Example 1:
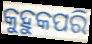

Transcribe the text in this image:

କୁହୁକପରି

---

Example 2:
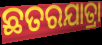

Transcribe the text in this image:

ଛତରଯାତ୍ରା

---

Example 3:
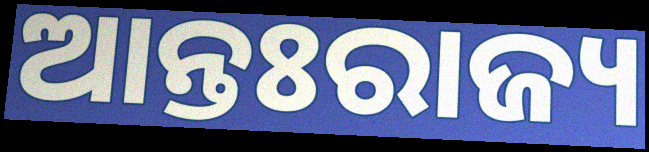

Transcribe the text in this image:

ଆନ୍ତଃରାଜ୍ୟ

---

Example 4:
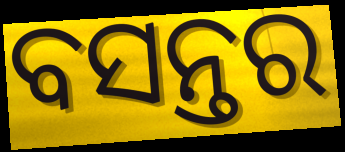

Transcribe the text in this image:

ବସନ୍ତର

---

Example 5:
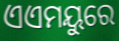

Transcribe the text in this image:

ଏଏମୟୁରେ